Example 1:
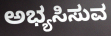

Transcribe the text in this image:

ಅಭ್ಯಸಿಸುವ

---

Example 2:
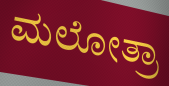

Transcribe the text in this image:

ಮಲೋತ್ರಾ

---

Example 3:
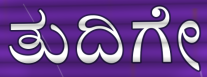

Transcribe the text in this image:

ತುದಿಗೇ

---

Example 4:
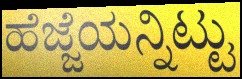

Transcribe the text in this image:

ಹೆಜ್ಜೆಯನ್ನಿಟ್ಟು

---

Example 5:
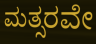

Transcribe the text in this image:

ಮತ್ಸರವೇ